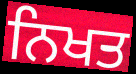
ਨਿਖਤ